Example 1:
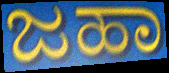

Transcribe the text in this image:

ಜಹಾ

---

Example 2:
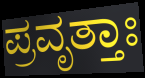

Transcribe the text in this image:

ಪ್ರವೃತ್ತಾಃ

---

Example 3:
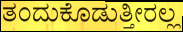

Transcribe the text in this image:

ತಂದುಕೊಡುತ್ತೀರಲ್ಲ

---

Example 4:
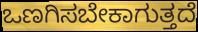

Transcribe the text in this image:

ಒಣಗಿಸಬೇಕಾಗುತ್ತದೆ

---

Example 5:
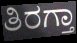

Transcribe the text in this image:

ತಿರಗ್ತಾ